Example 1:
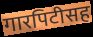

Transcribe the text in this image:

गारपिटीसह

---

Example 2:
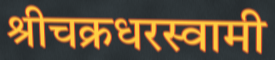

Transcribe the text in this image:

श्रीचक्रधरस्वामी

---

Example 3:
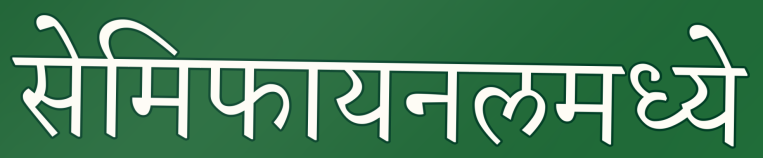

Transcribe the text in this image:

सेमिफायनलमध्ये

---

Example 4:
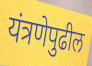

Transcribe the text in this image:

यंत्रणेपुढील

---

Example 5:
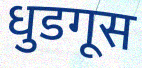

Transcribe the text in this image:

धुडगूस